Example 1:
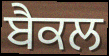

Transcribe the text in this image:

ਬੈਕਲ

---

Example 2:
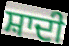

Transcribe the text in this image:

ਸ਼ਾਦੀ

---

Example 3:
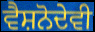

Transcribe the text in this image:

ਵੈਸ਼ਨੋਦੇਵੀ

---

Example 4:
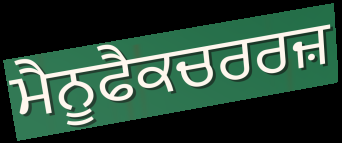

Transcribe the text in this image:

ਮੈਨੂਫੈਕਚਰਰਜ਼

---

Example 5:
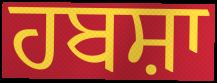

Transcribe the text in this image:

ਹਬਸ਼ਾ